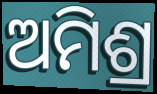
ଅମିଶ୍ର